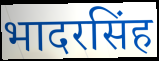
भादरसिंह